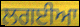
ਲਗਈਆ